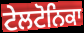
ਟੇਲਟੋਨਿਕਾ